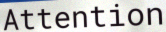
Attention